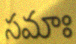
సమాః